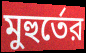
মুহুর্তের